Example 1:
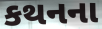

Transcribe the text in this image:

કથનના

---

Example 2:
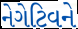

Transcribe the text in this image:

નેગેટિવને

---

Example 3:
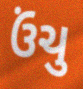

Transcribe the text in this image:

ઉંચુ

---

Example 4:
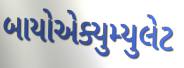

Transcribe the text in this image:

બાયોએક્યુમ્યુલેટ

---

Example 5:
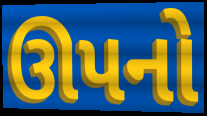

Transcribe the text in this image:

ઊપનો